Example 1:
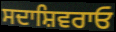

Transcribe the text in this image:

ਸਦਾਸ਼ਿਵਰਾਓ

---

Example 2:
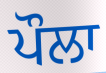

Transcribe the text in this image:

ਪੌਲਾ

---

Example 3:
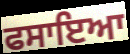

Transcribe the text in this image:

ਫਸਾਇਆ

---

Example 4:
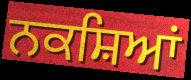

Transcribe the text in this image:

ਨਕਸ਼ਿਆਂ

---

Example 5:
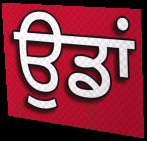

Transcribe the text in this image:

ਉਡਾਂ